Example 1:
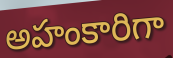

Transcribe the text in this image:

అహంకారిగా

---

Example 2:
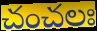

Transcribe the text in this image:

చంచలః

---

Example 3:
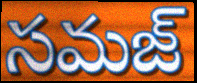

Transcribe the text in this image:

సమజ్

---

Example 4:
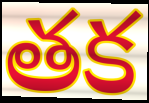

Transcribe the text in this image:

తక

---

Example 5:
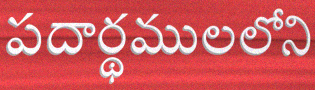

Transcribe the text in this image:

పదార్థములలోని